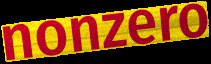
nonzero